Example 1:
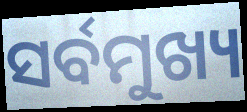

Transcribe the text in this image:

ସର୍ବମୁଖ୍ୟ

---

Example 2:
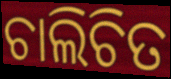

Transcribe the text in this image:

ଚାଲିଚିତ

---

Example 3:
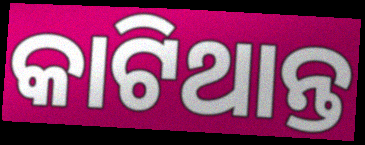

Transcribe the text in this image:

କାଟିଥାନ୍ତ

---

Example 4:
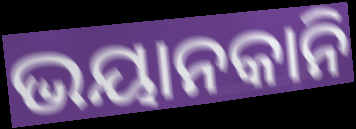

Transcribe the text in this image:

ଭୟାନକାନି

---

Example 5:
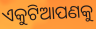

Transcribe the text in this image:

ଏକୁଟିଆପଣକୁ